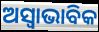
ଅସ୍ଵାଭାବିକ